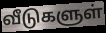
வீடுகளுள்